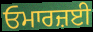
ਓਮਾਰਜ਼ਈ